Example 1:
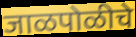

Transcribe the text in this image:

जाळपोळीचे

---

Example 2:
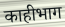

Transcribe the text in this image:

काहीभाग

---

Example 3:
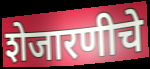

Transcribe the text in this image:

शेजारणीचे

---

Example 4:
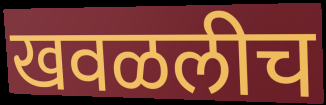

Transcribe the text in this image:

खवळलीच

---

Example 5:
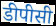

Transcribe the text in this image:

डीपीसी